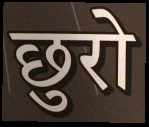
छुरो